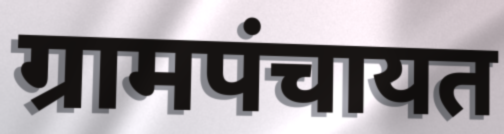
ग्रामपंचायत